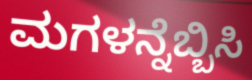
ಮಗಳನ್ನೆಬ್ಬಿಸಿ